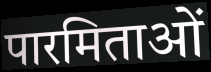
पारमिताओं